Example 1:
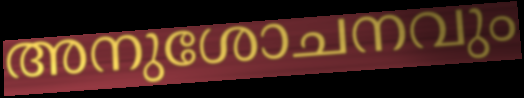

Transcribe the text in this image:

അനുശോചനവും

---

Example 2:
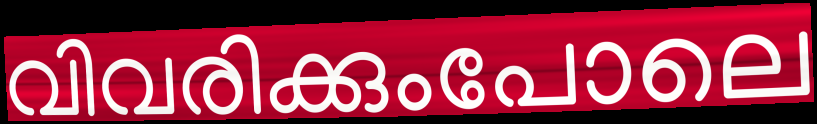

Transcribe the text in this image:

വിവരിക്കുംപോലെ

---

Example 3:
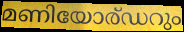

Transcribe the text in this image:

മണിയോര്ഡറും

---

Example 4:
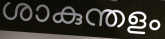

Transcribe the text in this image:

ശാകുന്തളം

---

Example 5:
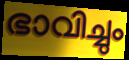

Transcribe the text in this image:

ഭാവിച്ചും